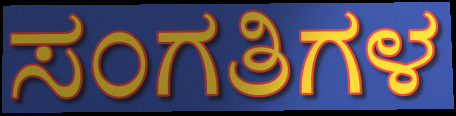
ಸಂಗತಿಗಳ